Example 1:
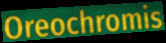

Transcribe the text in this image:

Oreochromis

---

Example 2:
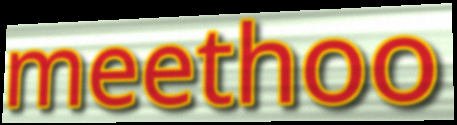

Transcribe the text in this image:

meethoo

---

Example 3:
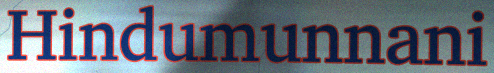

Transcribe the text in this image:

Hindumunnani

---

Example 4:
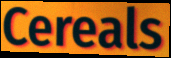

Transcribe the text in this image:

Cereals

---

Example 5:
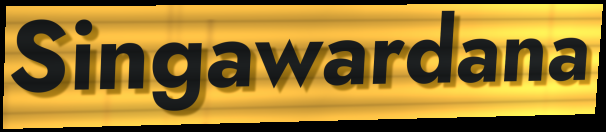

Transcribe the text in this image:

Singawardana